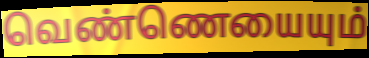
வெண்ணெயையும்